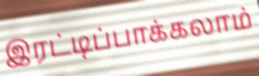
இரட்டிப்பாக்கலாம்